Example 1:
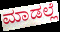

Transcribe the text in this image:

ಮಾಡಲ್ಲೆ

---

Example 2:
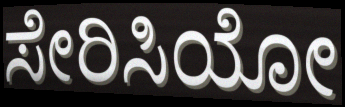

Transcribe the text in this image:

ಸೇರಿಸಿಯೋ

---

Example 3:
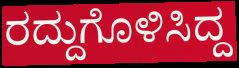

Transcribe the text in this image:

ರದ್ದುಗೊಳಿಸಿದ್ದ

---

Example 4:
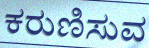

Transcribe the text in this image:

ಕರುಣಿಸುವ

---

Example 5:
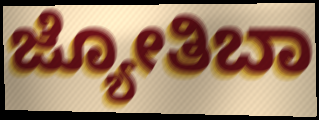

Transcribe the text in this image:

ಜ್ಯೋತಿಬಾ